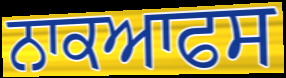
ਨਾਕਆਫਸ